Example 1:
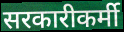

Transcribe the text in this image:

सरकारीकर्मी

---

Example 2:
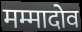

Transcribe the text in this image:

मम्मादोव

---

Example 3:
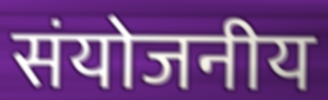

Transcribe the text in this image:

संयोजनीय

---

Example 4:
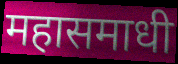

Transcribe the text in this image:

महासमाधी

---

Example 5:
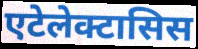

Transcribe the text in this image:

एटेलेक्टासिस